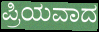
ಪ್ರಿಯವಾದ